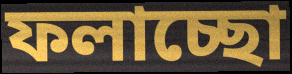
ফলাচ্ছো